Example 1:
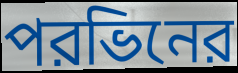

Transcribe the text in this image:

পরভিনের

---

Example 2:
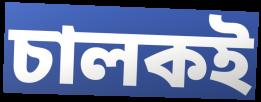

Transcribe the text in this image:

চালকই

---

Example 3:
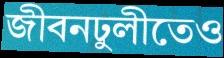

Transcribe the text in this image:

জীবনঢুলীতেও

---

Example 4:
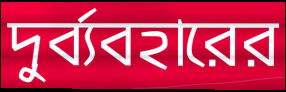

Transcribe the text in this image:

দুর্ব্যবহারের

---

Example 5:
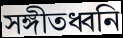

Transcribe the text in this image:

সঙ্গীতধ্বনি